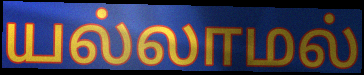
யல்லாமல்